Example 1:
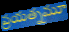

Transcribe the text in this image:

ప్రయత్నమూ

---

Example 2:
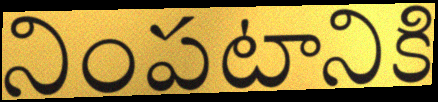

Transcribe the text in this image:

నింపటానికి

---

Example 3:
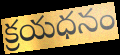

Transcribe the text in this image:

క్రయధనం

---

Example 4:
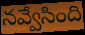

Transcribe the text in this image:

నవ్వేసింది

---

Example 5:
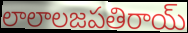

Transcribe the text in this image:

లాలాలజపతిరాయ్